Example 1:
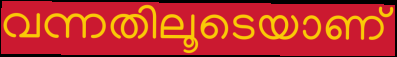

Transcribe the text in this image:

വന്നതിലൂടെയാണ്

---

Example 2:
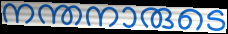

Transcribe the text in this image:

നന്തനാരുടെ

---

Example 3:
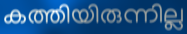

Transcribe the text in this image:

കത്തിയിരുന്നില്ല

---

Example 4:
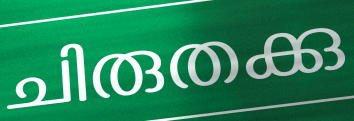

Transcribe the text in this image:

ചിരുതക്കു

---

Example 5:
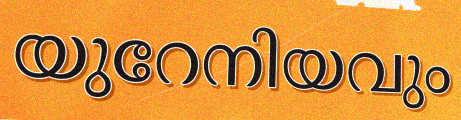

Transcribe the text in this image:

യുറേനിയവും